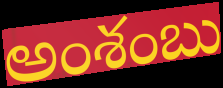
అంశంబు